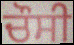
ਚੌਸੀ